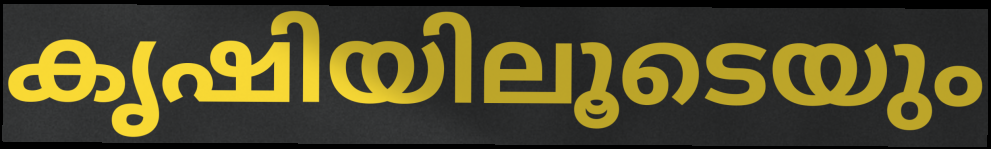
കൃഷിയിലൂടെയും